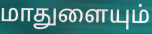
மாதுளையும்